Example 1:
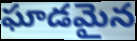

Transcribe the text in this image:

ఘాడమైన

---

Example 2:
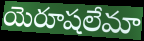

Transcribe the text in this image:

యెరూషలేమా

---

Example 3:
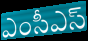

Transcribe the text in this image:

ఎంసీఎస్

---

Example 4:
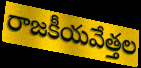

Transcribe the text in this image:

రాజకీయవేత్తల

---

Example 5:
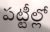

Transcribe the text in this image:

పట్టీల్లో